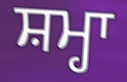
ਸ਼ਮ੍ਹਾ